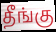
தீங்கு